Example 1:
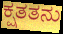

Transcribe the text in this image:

ಕ್ಷತತನು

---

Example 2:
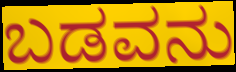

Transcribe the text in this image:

ಬಡವನು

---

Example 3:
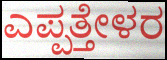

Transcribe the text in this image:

ಎಪ್ಪತ್ತೇಳರ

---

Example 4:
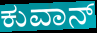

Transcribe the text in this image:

ಕುವಾನ್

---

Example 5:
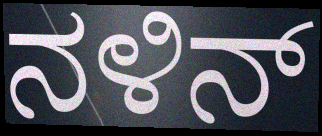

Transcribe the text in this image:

ನಳಿನ್